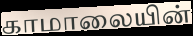
காமாலையின்